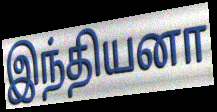
இந்தியனா